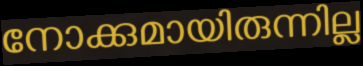
നോക്കുമായിരുന്നില്ല